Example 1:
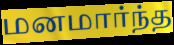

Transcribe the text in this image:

மனமார்ந்த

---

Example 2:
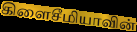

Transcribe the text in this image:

கிளைசீமியாவின்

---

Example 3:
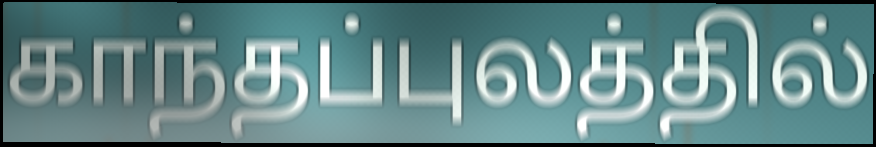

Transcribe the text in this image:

காந்தப்புலத்தில்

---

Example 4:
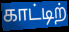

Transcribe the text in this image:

காட்டிற்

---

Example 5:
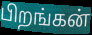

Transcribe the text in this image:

பிறங்கன்